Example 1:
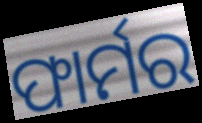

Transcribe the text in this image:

ଫାର୍ମର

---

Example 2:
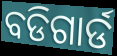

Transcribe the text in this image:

ବଡିଗାର୍ଡ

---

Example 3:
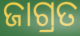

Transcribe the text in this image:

ଜାଗ୍ରତ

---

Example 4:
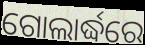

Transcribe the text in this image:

ଗୋଲାର୍ଦ୍ଧରେ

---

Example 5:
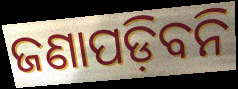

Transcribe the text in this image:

ଜଣାପଡ଼ିବନି